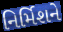
નિર્મિશને